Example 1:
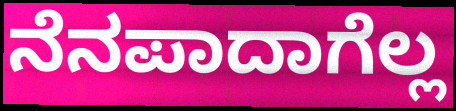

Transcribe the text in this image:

ನೆನಪಾದಾಗೆಲ್ಲ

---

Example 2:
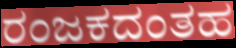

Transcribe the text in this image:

ರಂಜಕದಂತಹ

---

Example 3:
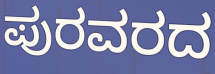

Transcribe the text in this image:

ಪುರವರದ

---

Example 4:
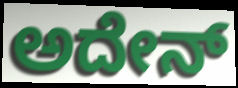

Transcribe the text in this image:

ಅದೇನ್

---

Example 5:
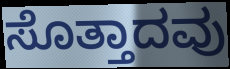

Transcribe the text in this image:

ಸೊತ್ತಾದವು